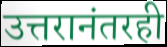
उत्तरानंतरही